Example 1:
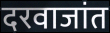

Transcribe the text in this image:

दरवाजांत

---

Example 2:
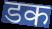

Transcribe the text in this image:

डक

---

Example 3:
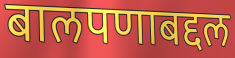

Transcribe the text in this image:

बालपणाबद्दल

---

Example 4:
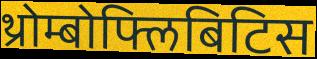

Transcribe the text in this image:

थ्रोम्बोफ्लिबिटिस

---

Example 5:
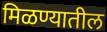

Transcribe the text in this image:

मिळण्यातील